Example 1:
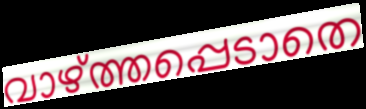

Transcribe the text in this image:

വാഴ്ത്തപ്പെടാതെ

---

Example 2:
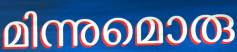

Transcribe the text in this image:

മിന്നുമൊരു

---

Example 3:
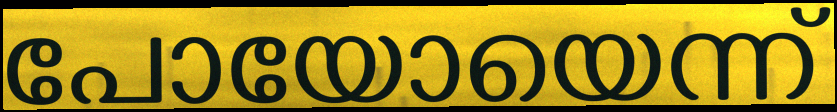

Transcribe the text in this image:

പോയോയെന്ന്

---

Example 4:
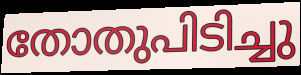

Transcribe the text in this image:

തോതുപിടിച്ചു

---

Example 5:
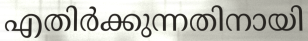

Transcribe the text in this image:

എതിർക്കുന്നതിനായി